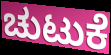
ಚುಟುಕೆ